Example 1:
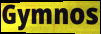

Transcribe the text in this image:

Gymnos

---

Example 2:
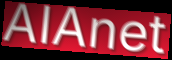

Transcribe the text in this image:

AIAnet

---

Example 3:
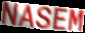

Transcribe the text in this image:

NASEM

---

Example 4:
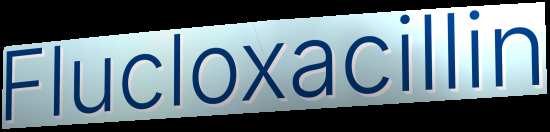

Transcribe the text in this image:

Flucloxacillin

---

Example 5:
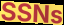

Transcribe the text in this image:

SSNs